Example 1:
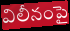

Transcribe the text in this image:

విలీనంపై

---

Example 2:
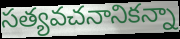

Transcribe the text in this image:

సత్యవచనానికన్నా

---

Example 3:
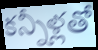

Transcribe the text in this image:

కన్నీళ్లతో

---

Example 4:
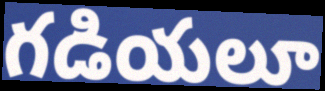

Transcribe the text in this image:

గడియలూ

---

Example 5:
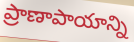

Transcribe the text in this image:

ప్రాణాపాయాన్ని